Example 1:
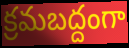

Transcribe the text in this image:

క్రమబద్దంగా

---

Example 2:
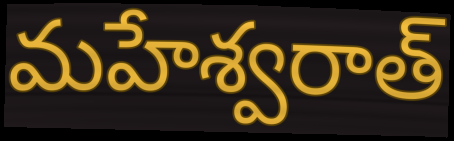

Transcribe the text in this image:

మహేశ్వరాత్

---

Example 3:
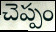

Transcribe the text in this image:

చెప్పం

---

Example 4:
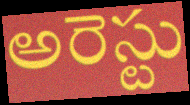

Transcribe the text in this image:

అరెస్టు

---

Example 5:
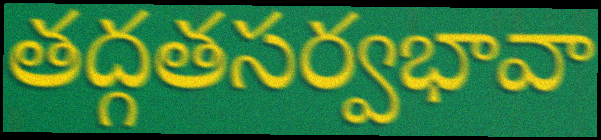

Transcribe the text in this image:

తద్గతసర్వభావా